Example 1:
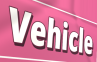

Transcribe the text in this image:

Vehicle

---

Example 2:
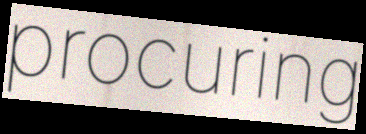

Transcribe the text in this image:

procuring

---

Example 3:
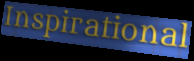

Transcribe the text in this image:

Inspirational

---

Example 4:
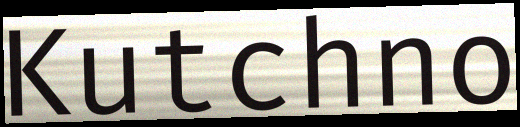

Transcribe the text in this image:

Kutchno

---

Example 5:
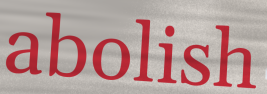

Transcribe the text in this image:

abolish